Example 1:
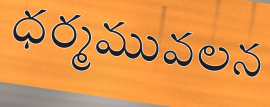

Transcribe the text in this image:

ధర్మమువలన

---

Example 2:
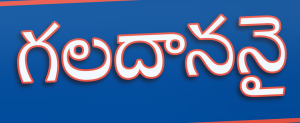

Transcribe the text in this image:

గలదాననై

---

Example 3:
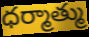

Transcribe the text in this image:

ధర్మాత్ము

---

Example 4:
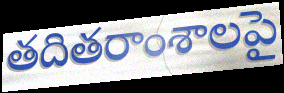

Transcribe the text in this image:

తదితరాంశాలపై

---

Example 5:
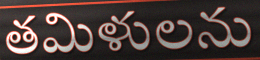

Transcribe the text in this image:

తమిళులను